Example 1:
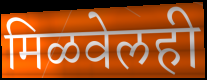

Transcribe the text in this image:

मिळवेलही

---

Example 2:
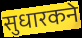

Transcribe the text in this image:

सुधारकने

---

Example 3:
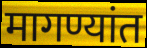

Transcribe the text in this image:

मागण्यांत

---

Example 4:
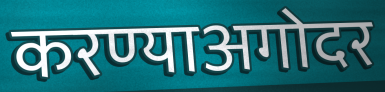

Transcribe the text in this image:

करण्याअगोदर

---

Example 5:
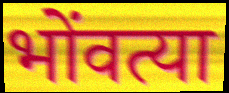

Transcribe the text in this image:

भोंवत्या